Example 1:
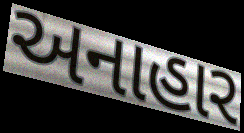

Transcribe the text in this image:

અનાહાર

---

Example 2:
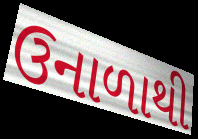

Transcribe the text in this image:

ઉનાળાથી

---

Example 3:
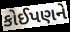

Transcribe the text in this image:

કોઈપણને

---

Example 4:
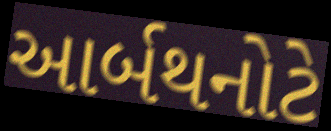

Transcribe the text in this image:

આર્બથનોટે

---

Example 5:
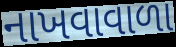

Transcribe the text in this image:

નાખવાવાળા